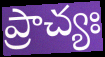
ప్రాచ్యః